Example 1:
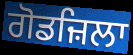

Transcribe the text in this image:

ਗੋਡਜ਼ਿਲਾ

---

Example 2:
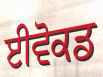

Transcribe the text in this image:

ਈਵੋਕਡ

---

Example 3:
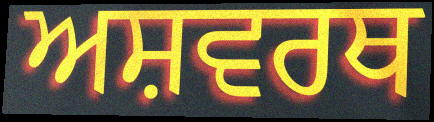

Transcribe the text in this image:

ਅਸ਼ਵਰਥ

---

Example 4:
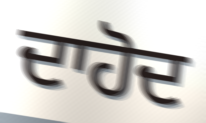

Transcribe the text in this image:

ਦਾਹੋਦ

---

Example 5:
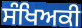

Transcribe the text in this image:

ਸੰਖਿਅਕੀ